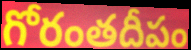
గోరంతదీపం